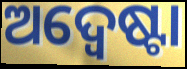
ଅଦ୍ୱେଷ୍ଟା